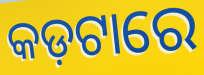
କଡ଼ଟାରେ